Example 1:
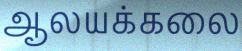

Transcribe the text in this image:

ஆலயக்கலை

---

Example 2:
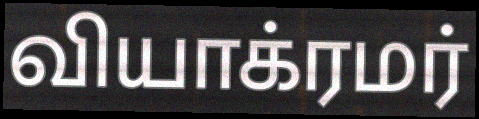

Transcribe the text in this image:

வியாக்ரமர்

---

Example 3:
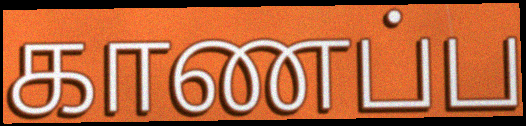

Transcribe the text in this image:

காணப்ப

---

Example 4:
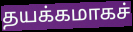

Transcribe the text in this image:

தயக்கமாகச்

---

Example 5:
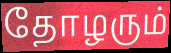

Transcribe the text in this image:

தோழரும்